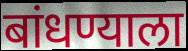
बांधण्याला